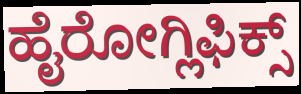
ಹೈರೋಗ್ಲಿಫಿಕ್ಸ್